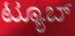
ಟ್ಯೂಬ್